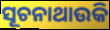
ସୂଚନାଥାଉକି